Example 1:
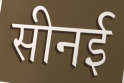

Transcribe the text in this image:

सीनई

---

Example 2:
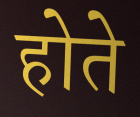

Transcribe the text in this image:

होते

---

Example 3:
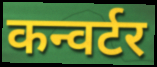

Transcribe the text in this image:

कन्वर्टर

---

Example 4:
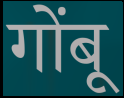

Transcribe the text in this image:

गोंबू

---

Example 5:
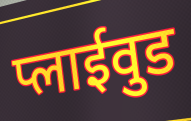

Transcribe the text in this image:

प्लाईवुड